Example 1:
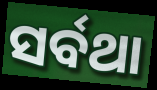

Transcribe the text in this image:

ସର୍ବଥା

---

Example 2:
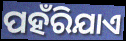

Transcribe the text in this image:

ପହଁରିଯାଏ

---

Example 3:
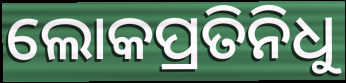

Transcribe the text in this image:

ଲୋକପ୍ରତିନିଧୁ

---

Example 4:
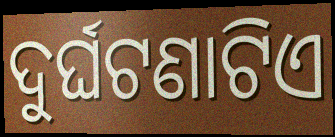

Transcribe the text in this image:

ଦୁର୍ଘଟଣାଟିଏ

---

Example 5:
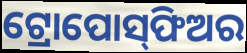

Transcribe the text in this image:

ଟ୍ରୋପୋସ୍‌ଫିଅର